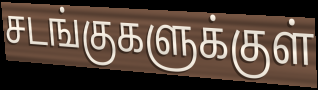
சடங்குகளுக்குள்